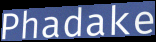
Phadake